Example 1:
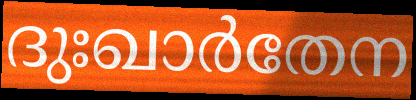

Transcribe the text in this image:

ദുഃഖാർതേന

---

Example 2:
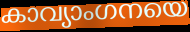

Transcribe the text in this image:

കാവ്യാംഗനയെ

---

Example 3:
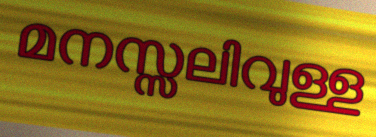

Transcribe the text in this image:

മനസ്സലിവുള്ള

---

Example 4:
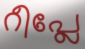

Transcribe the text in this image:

റീപ്ലേ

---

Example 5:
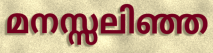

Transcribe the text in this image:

മനസ്സലിഞ്ഞ